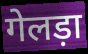
गेलड़ा